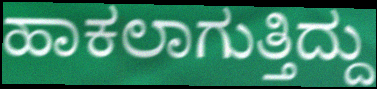
ಹಾಕಲಾಗುತ್ತಿದ್ದು